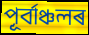
পূৰ্বাঞ্চলৰ